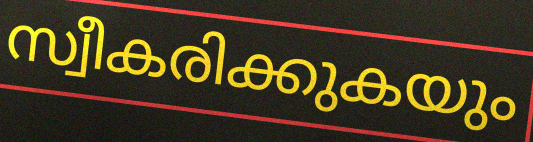
സ്വീകരിക്കുകയും